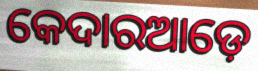
କେଦାରଆଡ଼େ